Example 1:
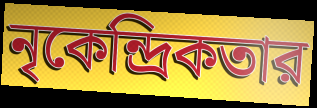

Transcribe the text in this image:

নৃকেন্দ্রিকতার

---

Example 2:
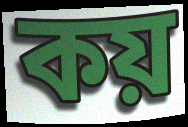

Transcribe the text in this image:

কয়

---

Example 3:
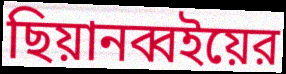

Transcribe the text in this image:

ছিয়ানব্বইয়ের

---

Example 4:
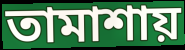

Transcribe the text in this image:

তামাশায়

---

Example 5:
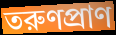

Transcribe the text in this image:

তরুণপ্রাণ